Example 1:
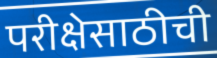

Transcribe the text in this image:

परीक्षेसाठीची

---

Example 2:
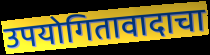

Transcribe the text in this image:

उपयोगितावादाचा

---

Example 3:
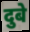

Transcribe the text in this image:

दुबे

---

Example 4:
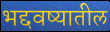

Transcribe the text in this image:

भद्दवष्यातील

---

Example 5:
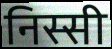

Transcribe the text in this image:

निस्सी